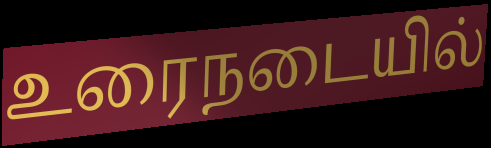
உரைநடையில்